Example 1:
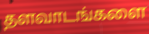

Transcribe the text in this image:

தளவாடங்களை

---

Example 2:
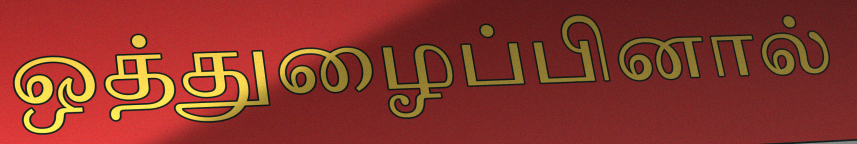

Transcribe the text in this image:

ஒத்துழைப்பினால்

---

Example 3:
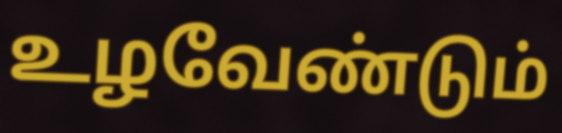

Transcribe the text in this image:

உழவேண்டும்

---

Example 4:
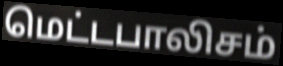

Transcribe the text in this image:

மெட்டபாலிசம்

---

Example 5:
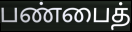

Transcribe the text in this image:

பண்பைத்